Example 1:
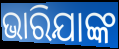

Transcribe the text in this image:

ଭାରିଯାଙ୍କ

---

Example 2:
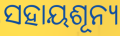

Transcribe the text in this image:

ସହାୟଶୂନ୍ୟ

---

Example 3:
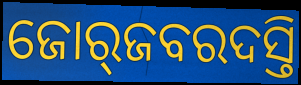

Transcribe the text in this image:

ଜୋର୍‍ଜବରଦସ୍ତି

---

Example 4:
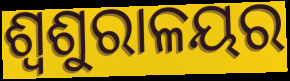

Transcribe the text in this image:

ଶ୍ୱଶୁରାଳୟର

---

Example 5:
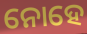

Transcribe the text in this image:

ନୋହେ